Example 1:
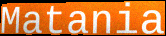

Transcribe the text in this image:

Matania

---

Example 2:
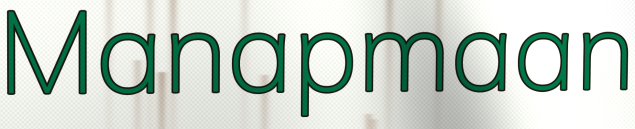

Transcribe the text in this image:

Manapmaan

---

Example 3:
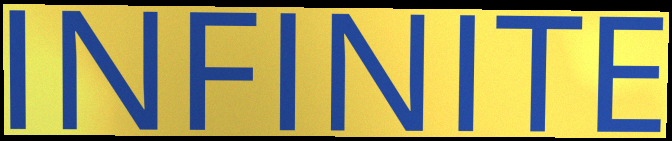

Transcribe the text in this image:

INFINITE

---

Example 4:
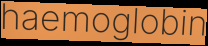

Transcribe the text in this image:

haemoglobin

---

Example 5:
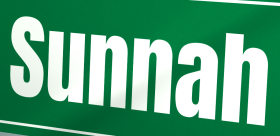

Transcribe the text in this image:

Sunnah